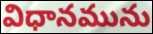
విధానమును